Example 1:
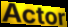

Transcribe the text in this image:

Actor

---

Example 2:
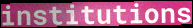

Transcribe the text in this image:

institutions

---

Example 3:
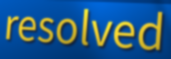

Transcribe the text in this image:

resolved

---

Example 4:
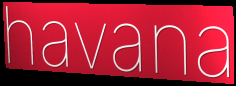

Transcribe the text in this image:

havana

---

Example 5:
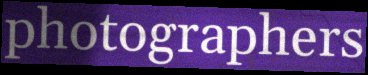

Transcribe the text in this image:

photographers